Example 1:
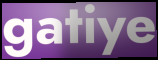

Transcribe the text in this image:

gatiye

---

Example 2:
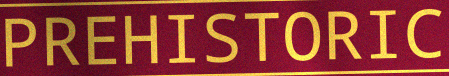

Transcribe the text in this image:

PREHISTORIC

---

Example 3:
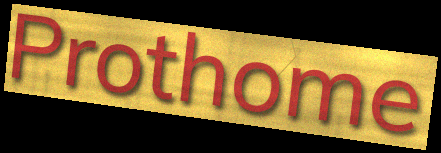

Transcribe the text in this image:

Prothome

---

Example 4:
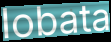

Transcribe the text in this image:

lobata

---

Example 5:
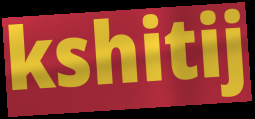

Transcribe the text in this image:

kshitij